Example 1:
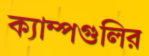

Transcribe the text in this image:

ক্যাম্পগুলির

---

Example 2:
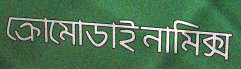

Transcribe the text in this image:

ক্রোমোডাইনামিক্স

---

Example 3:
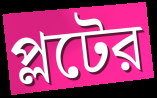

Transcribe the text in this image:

প্লটের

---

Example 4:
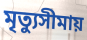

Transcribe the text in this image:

মৃত্যুসীমায়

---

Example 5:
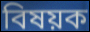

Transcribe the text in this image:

বিষয়ক